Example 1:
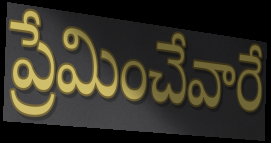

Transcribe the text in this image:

ప్రేమించేవారే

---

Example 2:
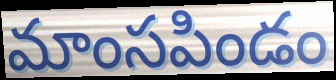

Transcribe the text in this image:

మాంసపిండం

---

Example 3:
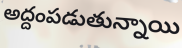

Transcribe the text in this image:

అద్దంపడుతున్నాయి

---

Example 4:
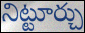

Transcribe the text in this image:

నిట్టూర్చు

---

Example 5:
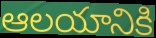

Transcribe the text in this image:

ఆలయానికి